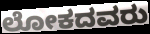
ಲೋಕದವರು